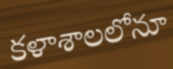
కళాశాలలోనూ